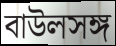
বাউলসঙ্গ